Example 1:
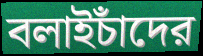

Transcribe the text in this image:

বলাইচাঁদের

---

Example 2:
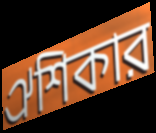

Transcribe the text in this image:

ঐশিকার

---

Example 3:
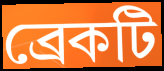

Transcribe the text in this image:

ব্রেকটি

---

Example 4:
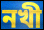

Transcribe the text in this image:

নখী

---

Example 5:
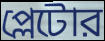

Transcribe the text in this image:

প্লেটোর